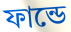
ফান্ডে